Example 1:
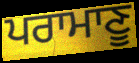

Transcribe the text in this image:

ਪਰਾਮਾਣੂ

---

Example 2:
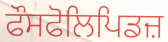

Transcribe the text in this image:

ਫੌਸਫੋਲਿਪਿਡਜ਼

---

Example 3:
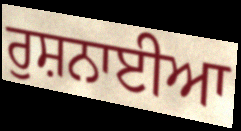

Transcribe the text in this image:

ਰੁਸ਼ਨਾਈਆ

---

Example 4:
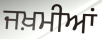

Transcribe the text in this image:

ਜਖ਼ਮੀਆਂ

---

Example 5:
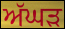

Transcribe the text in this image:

ਅੱਘੜ